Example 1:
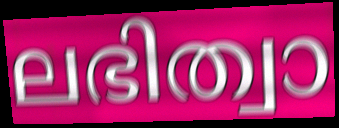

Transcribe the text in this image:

ലഭിത്വാ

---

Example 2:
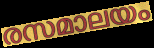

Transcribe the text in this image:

രസമാലയം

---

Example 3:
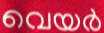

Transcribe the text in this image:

വെയർ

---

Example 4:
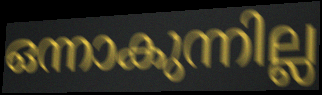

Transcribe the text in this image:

ഒന്നാകുന്നില്ല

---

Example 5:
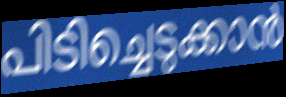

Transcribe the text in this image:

പിടിച്ചെടുക്കാൻ